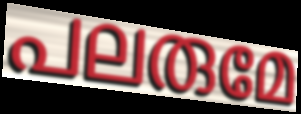
പലരുമേ